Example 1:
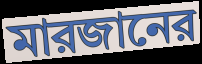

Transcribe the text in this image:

মারজানের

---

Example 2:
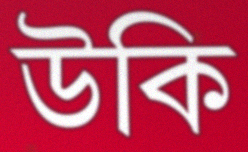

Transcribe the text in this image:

উকি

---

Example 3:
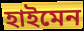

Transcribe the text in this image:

হাইমেন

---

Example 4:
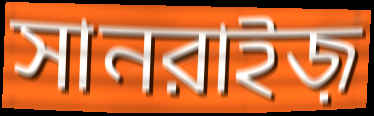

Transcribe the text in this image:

সানরাইজ়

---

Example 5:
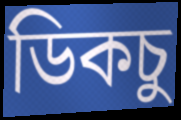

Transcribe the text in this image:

ডিকচু